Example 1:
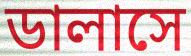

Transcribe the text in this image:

ডালাসে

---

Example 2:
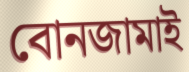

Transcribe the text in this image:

বোনজামাই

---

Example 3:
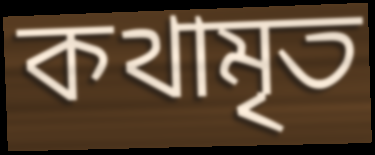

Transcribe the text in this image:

কথামৃত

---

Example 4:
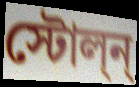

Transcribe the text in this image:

স্টোল্ন্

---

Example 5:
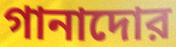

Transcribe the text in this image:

গানাদোর